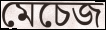
মেচেজ